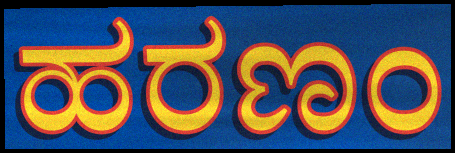
ಹರಣಂ